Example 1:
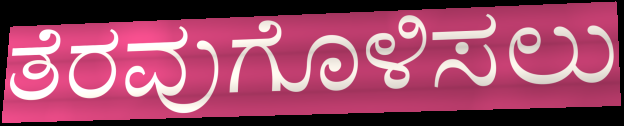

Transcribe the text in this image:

ತೆರವುಗೊಳಿಸಲು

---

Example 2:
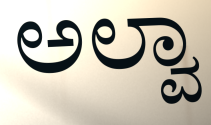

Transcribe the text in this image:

ಅಲ್ವಾ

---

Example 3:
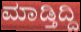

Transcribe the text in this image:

ಮಾಡ್ತಿದ್ದಿ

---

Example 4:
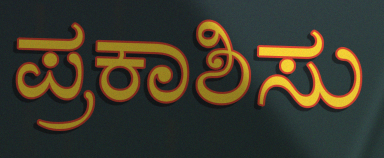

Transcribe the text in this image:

ಪ್ರಕಾಶಿಸು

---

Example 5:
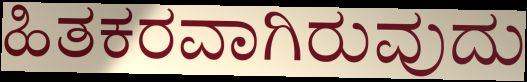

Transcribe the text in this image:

ಹಿತಕರವಾಗಿರುವುದು